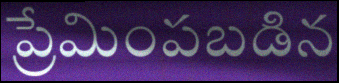
ప్రేమింపబడిన